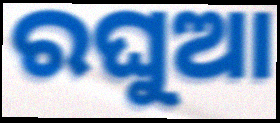
ରଘୁଆ